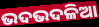
ଭଦଭଦଳିଆ